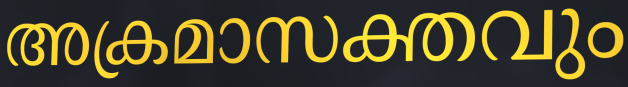
അക്രമാസക്തവും